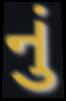
નું